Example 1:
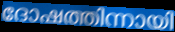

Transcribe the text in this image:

ദോഷത്തിന്നായി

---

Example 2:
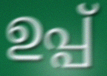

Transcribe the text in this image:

ഉപ്പ്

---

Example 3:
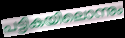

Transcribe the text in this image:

പട്ടികയിലൊന്നും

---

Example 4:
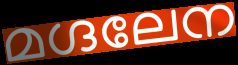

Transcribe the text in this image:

മഗ്ദലേന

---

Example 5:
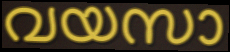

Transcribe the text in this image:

വയസാ